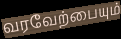
வரவேற்பையும்